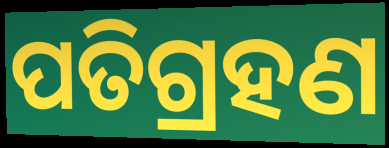
ପତିଗ୍ରହଣ